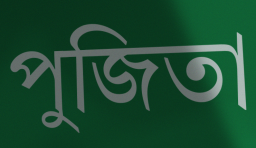
পুজিতা